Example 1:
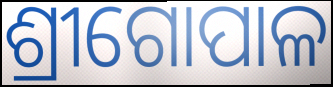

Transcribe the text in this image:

ଶ୍ରୀଗୋପାଳ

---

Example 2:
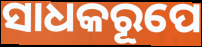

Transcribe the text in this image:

ସାଧକରୂପେ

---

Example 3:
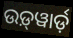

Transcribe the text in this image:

ଉଡ଼୍‍ୱାର୍ଡ଼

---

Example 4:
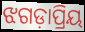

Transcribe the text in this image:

ଝଗଡ଼ାପ୍ରିୟ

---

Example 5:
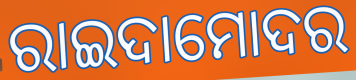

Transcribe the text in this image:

ରାଇଦାମୋଦର